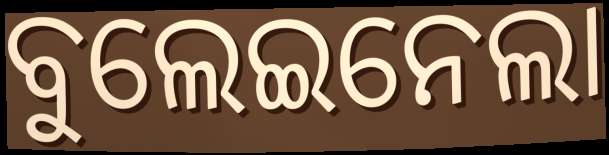
ବୁଲେଇନେଲା